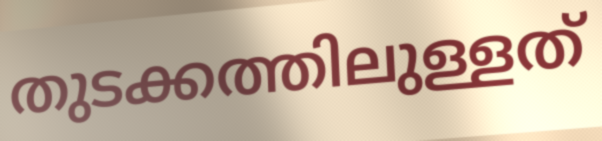
തുടക്കത്തിലുള്ളത്